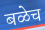
बळेच